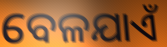
ବେଳଯାଏଁ